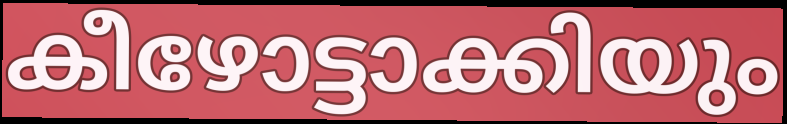
കീഴോട്ടാക്കിയും